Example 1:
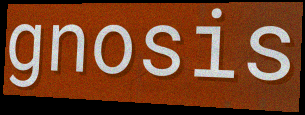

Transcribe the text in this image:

gnosis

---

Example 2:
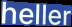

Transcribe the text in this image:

heller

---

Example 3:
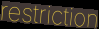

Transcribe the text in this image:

restriction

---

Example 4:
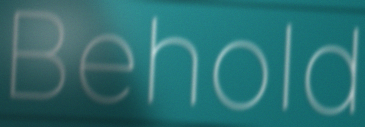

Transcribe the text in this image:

Behold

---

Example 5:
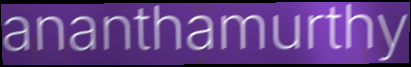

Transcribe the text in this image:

ananthamurthy